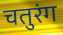
चतुरंग